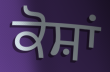
ਕੋਸ਼ਾਂ